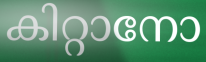
കിറ്റാനോ